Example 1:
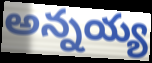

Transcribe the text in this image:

అన్నయ్య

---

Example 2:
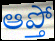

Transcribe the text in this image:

ఆప్తో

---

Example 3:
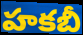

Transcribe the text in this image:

హకబీ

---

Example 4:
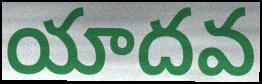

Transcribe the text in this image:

యాదవ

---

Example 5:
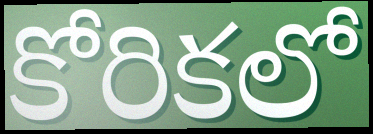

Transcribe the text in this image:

కోరికలో